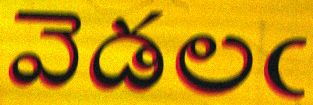
వెడలఁ